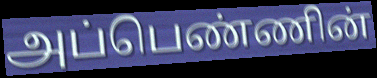
அப்பெண்ணின்